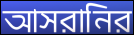
আসরানির